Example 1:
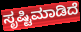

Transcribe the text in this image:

ಸೃಷ್ಟಿಮಾಡಿದೆ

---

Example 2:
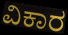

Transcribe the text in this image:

ವಿಕಾರ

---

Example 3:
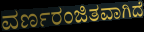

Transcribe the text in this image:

ವರ್ಣರಂಜಿತವಾಗಿದೆ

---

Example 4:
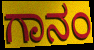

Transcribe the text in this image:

ಗಾನಂ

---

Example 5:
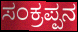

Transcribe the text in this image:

ಸಂಕ್ರಪ್ಪನ